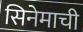
सिनेमाची